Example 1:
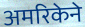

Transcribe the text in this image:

अमरिकेने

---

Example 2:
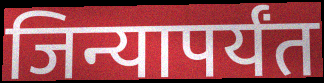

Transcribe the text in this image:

जिन्यापर्यंत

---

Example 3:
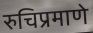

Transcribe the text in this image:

रुचिप्रमाणे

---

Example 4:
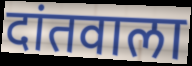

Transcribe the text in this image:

दांतवाला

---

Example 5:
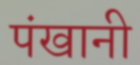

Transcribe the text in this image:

पंखानी